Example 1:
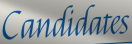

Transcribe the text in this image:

Candidates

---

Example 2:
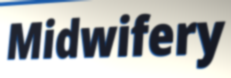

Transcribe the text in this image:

Midwifery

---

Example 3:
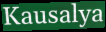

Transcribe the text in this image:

Kausalya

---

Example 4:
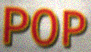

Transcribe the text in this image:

POP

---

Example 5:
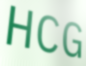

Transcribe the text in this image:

HCG